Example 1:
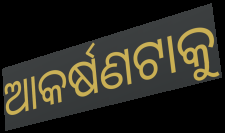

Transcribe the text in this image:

ଆକର୍ଷଣଟାକୁ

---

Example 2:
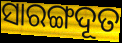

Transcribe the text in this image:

ସାରଙ୍ଗଦୂତ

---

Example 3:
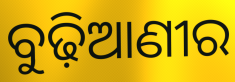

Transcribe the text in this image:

ବୁଢ଼ିଆଣୀର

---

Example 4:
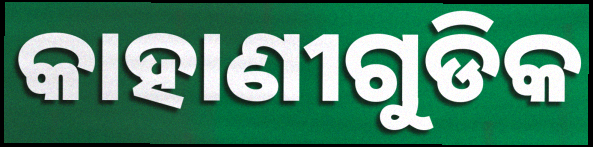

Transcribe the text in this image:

କାହାଣୀଗୁଡିକ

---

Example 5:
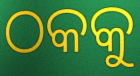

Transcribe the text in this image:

ଠକକୁ